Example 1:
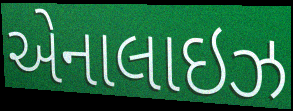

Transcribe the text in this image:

એનાલાઇઝ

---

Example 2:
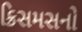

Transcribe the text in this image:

ક્રિસમસનો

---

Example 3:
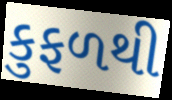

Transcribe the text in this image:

કુફળથી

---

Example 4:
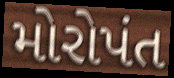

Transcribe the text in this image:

મોરોપંત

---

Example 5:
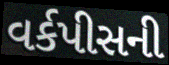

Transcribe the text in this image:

વર્કપીસની